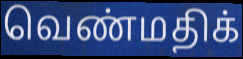
வெண்மதிக்